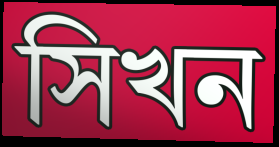
সিখন